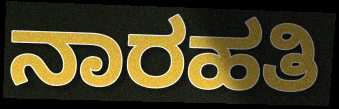
ನಾರಹತಿ